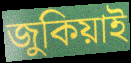
জুকিয়াই